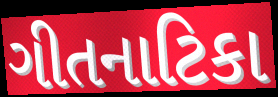
ગીતનાટિકા